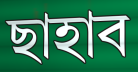
ছাহাব